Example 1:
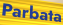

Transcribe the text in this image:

Parbata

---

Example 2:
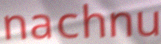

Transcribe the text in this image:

nachnu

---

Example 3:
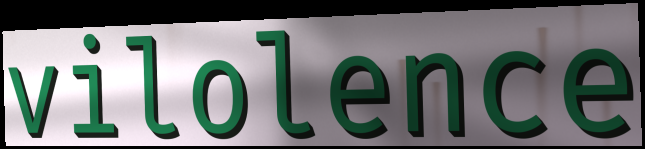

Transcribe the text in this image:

vilolence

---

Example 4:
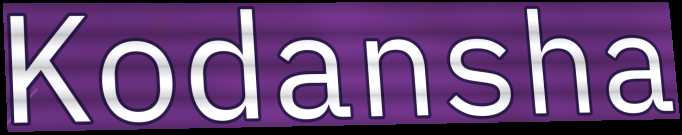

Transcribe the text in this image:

Kodansha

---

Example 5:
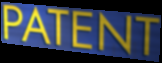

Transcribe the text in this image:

PATENT